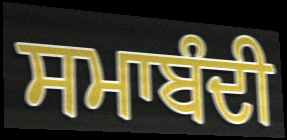
ਸਮਾਬੰਦੀ